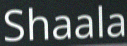
Shaala